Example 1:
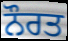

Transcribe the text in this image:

ਨੌਰਤ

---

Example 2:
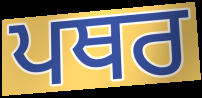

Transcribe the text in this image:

ਪਥਰ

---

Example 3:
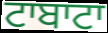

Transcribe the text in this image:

ਟਾਬਾਟਾ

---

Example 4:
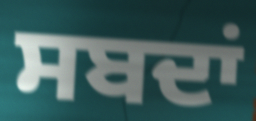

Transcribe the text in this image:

ਸਬਦਾਂ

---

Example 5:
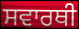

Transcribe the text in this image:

ਸਵਾਰਥੀ